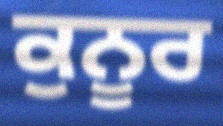
ਕੁਨੂਰ